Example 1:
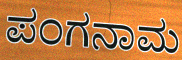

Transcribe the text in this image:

ಪಂಗನಾಮ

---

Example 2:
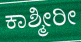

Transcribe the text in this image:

ಕಾಶ್ಮೀರೀ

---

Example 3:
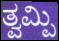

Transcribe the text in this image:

ತ್ವಮ್ಪಿ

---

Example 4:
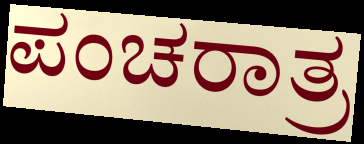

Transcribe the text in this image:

ಪಂಚರಾತ್ರ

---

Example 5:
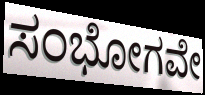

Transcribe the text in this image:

ಸಂಭೋಗವೇ